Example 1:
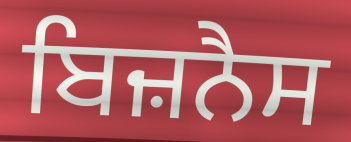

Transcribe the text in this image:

ਬਿਜ਼ਨੈਸ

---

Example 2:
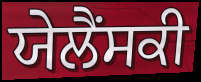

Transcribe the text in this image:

ਯੇਲੈਂਸਕੀ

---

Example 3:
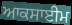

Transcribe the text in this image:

ਆਕਸਾਈਮ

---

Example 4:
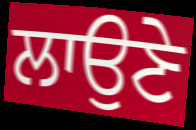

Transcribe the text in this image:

ਲਾਉਣੇ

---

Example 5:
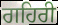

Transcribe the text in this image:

ਗਹਿਰੀ